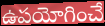
ఉపయోగించే